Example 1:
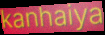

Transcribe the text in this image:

kanhaiya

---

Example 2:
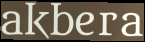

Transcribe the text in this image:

akbera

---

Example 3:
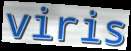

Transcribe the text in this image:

viris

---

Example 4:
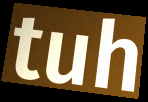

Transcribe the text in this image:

tuh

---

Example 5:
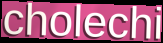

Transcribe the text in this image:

cholechi